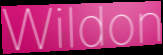
Wildon